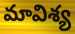
మావిశ్య